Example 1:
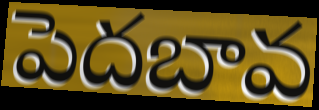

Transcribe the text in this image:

పెదబావ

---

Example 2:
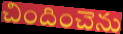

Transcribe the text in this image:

చిందించెను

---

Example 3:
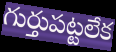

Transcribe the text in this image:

గుర్తుపట్టలేక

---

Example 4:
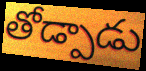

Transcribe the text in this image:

తోడ్పాడు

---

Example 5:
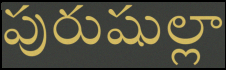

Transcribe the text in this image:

పురుషుల్లా